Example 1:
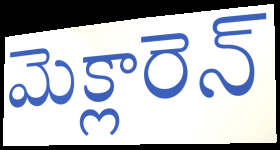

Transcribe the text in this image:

మెక్లారెన్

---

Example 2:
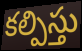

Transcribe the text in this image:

కల్పిస్తు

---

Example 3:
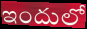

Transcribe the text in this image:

ఇందులో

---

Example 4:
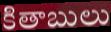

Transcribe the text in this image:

కితాబులు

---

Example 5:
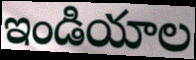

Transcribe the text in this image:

ఇండియాల